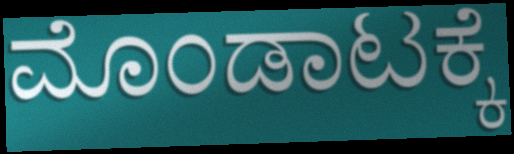
ಮೊಂಡಾಟಕ್ಕೆ